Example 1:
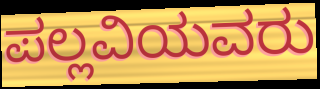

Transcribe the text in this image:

ಪಲ್ಲವಿಯವರು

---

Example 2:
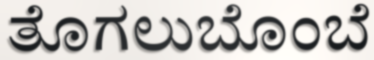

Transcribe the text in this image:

ತೊಗಲುಬೊಂಬೆ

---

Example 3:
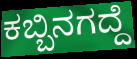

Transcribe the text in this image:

ಕಬ್ಬಿನಗದ್ದೆ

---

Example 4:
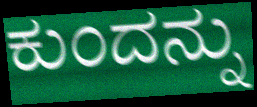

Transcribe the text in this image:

ಕುಂದನ್ನು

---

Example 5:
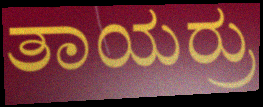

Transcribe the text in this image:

ತಾಯರ್ರು